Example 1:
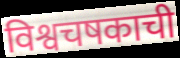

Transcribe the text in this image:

विश्वचषकाची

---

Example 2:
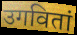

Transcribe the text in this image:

उगवितां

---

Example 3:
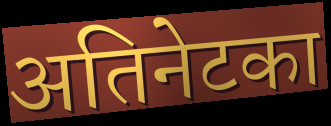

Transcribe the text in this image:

अतिनेटका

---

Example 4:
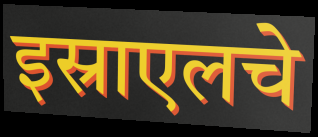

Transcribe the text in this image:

इस्राएलचे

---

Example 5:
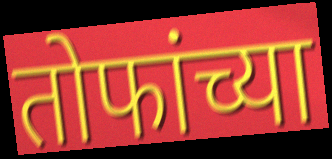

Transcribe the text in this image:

तोफांच्या